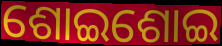
ଶୋଇଶୋଇ